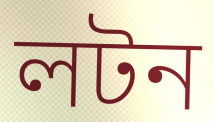
লটন